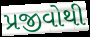
પ્રજીવોથી